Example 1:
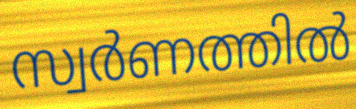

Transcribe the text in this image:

സ്വർണത്തിൽ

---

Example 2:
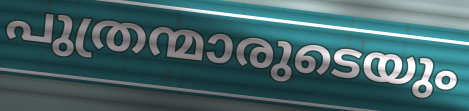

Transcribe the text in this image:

പുത്രന്മാരുടെയും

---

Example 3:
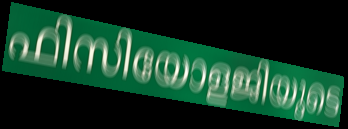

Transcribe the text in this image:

ഫിസിയോളജിയുടെ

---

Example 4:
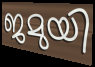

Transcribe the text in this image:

ജമുയി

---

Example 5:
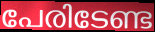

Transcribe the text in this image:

പേരിടേണ്ട